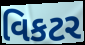
વિકટર